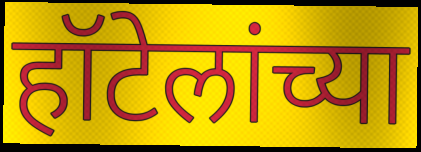
हॉटेलांच्या